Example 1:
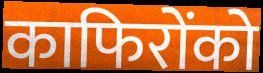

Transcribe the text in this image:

काफिरोंको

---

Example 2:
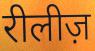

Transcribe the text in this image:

रीलीज़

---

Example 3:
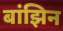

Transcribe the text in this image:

बांझिन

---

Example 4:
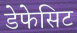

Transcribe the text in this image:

डेफेसिट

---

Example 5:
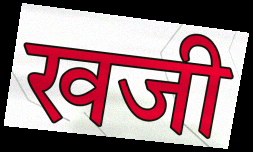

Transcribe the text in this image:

खजी